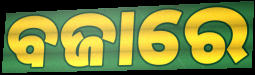
ବଜାରେ